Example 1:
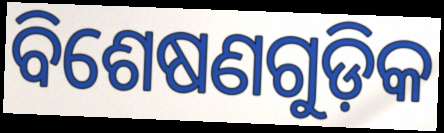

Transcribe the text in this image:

ବିଶେଷଣଗୁଡ଼ିକ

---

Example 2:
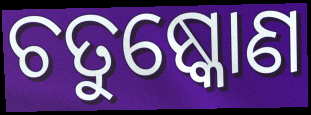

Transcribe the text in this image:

ଚତୁଷ୍କୋଣ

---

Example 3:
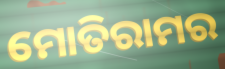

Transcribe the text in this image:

ମୋତିରାମର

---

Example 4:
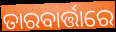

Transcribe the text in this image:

ତାରବାର୍ତ୍ତାରେ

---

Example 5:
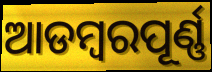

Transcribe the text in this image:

ଆଡମ୍ବରପୂର୍ଣ୍ଣ